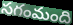
సగంమంది